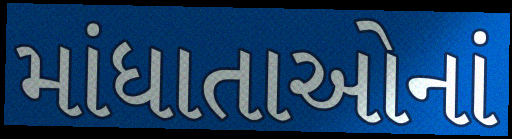
માંધાતાઓનાં